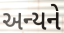
અન્યને